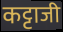
कट्टाजी